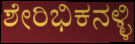
ಶೇರಿಭಿಕನಳ್ಳಿ